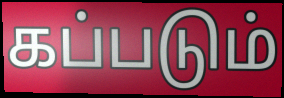
கப்படும்